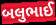
બલુભાઈ